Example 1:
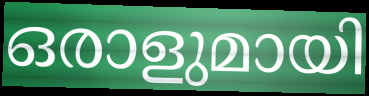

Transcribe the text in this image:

ഒരാളുമായി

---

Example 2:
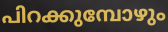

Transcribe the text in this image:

പിറക്കുമ്പോഴും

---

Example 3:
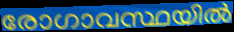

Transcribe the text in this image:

രോഗാവസ്ഥയിൽ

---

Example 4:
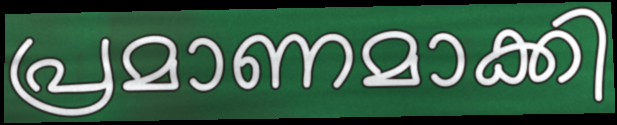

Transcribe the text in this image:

പ്രമാണമാക്കി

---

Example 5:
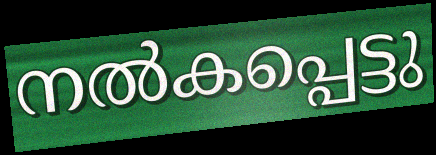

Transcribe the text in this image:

നൽകപ്പെട്ടു